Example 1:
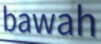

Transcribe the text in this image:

bawah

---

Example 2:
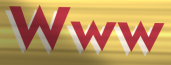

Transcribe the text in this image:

Www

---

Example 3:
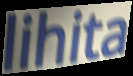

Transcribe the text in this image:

lihita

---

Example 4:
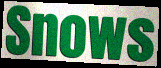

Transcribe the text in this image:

Snows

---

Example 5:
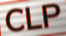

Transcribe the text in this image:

CLP